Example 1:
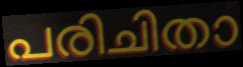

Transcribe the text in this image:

പരിചിതാ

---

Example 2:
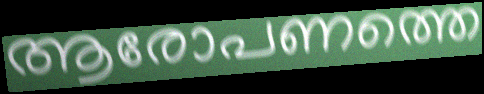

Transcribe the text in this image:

ആരോപണത്തെ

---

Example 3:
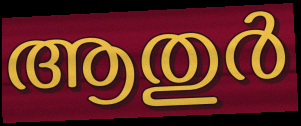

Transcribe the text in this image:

ആതുർ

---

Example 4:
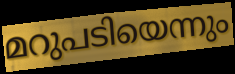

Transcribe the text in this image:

മറുപടിയെന്നും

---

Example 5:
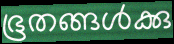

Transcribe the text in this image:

ഭൂതങ്ങൾക്കു